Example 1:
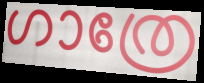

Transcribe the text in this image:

ഗാത്രേ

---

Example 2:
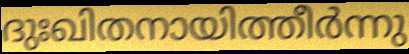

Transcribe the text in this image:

ദുഃഖിതനായിത്തീർന്നു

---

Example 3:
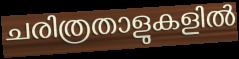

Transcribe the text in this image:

ചരിത്രതാളുകളിൽ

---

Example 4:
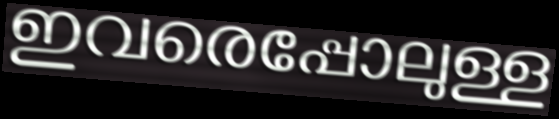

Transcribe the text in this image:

ഇവരെപ്പോലുള്ള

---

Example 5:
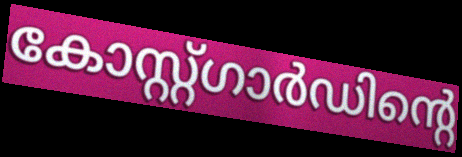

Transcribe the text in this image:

കോസ്റ്റ്ഗാർഡിന്റെ